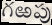
గఱపు